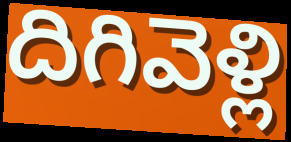
దిగివెళ్లి